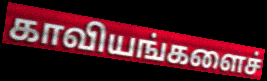
காவியங்களைச்